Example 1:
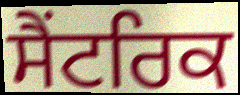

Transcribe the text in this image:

ਸੈਂਟਰਿਕ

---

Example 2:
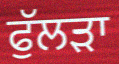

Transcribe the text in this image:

ਫੁੱਲੜਾ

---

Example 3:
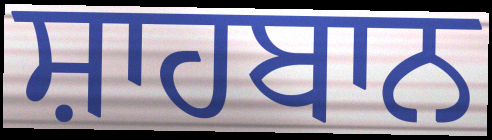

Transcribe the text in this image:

ਸ਼ਾਹਬਾਨ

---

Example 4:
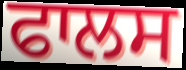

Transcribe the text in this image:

ਫਾਲਸ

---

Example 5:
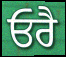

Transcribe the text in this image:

ਓਰੈ